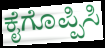
ಕೈಗೊಪ್ಪಿಸಿ